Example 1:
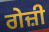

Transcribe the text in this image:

ਗੇਜ਼ੀ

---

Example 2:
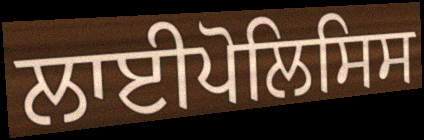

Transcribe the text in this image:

ਲਾਈਪੋਲਿਸਿਸ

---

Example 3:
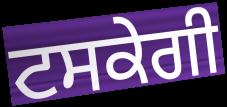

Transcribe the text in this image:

ਟਸਕੇਗੀ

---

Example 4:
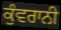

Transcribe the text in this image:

ਕੁੰਵਰਾਨੀ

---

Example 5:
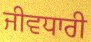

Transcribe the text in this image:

ਜੀਵਧਾਰੀ